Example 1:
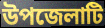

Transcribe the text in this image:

উপজেলাটি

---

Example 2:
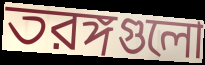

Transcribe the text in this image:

তরঙ্গগুলো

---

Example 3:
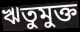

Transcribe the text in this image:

ঋতুমুক্ত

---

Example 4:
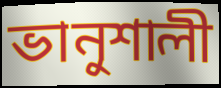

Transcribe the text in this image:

ভানুশালী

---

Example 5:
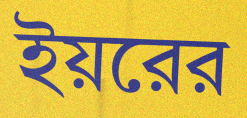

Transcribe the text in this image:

ইয়রের